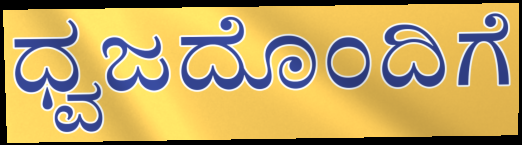
ಧ್ವಜದೊಂದಿಗೆ